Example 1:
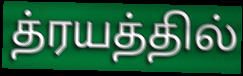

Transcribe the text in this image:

த்ரயத்தில்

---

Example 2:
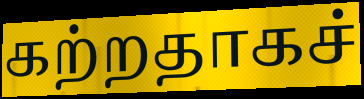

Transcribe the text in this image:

கற்றதாகச்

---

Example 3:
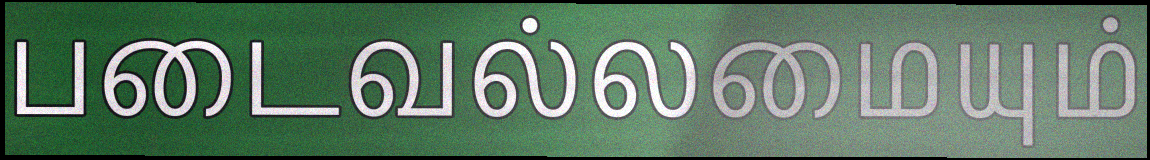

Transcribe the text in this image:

படைவல்லமையும்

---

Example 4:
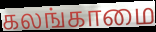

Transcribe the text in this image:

கலங்காமை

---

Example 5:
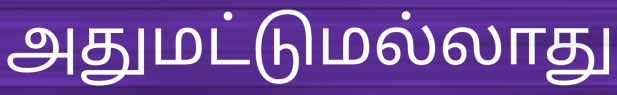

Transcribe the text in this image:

அதுமட்டுமல்லாது